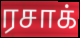
ரசாக்